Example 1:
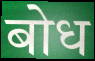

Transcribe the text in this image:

बोध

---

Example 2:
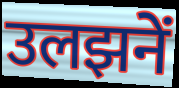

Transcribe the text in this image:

उलझनें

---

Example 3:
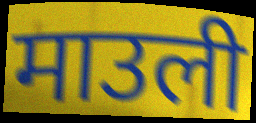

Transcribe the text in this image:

माउली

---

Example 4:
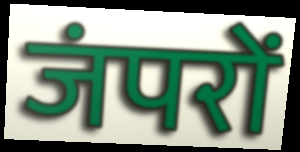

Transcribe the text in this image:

जंपरों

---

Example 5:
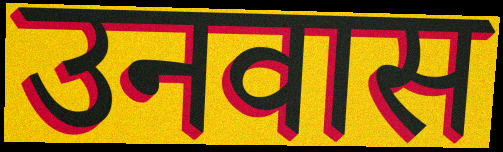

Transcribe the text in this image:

उनवास